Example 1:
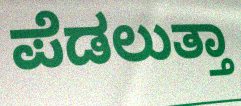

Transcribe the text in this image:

ಪೆಡಲುತ್ತಾ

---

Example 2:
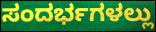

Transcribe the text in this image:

ಸಂದರ್ಭಗಳಲ್ಲು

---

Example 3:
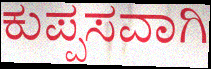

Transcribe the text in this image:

ಕುಪ್ಪಸವಾಗಿ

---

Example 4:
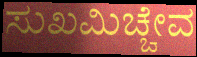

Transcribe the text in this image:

ಸುಖಮಿಚ್ಚೇವ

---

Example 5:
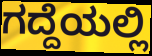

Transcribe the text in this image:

ಗದ್ದೆಯಲ್ಲಿ